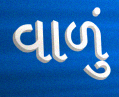
વાળું